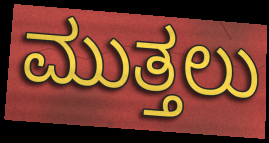
ಮುತ್ತಲು